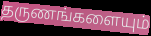
தருணங்களையும்